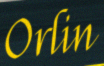
Orlin